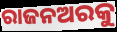
ରାଜନଅରକୁ